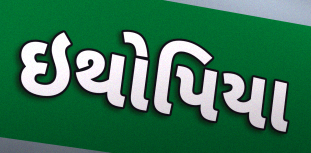
ઇથોપિયા